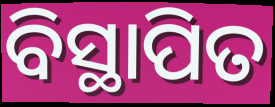
ବିସ୍ଥାପିତ